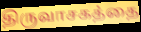
திருவாசகத்தை